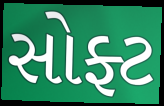
સોફ્ટ